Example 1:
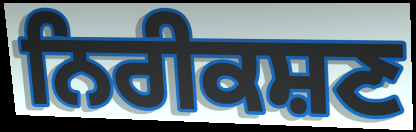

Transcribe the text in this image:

ਨਿਰੀਕਸ਼ਣ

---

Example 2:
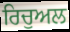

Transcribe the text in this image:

ਰਿਚੁਅਲ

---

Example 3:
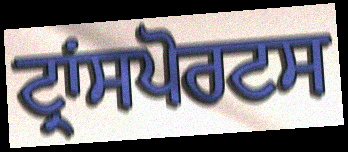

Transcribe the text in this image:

ਟ੍ਰਾਂਸਪੋਰਟਸ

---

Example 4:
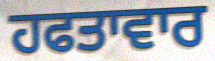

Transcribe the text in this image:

ਹਫਤਾਵਾਰ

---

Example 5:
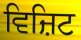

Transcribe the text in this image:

ਵਿਜ਼ਿਟ